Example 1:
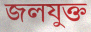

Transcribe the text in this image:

জলযুক্ত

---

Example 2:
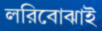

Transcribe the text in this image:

লরিবোঝাই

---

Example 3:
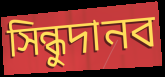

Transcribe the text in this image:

সিন্ধুদানব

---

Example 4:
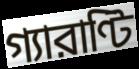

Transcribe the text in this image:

গ্যারাণ্টি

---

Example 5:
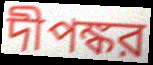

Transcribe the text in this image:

দীপঙ্কর